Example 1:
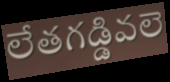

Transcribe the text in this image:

లేతగడ్డివలె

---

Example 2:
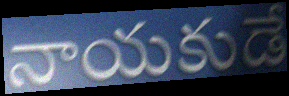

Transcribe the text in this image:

నాయకుడే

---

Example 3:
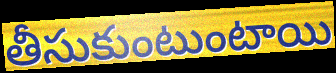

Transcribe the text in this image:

తీసుకుంటుంటాయి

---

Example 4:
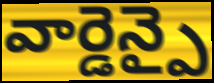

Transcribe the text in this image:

వార్డెన్పై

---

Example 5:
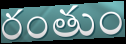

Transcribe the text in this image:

రంతుం